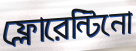
ফ্লোরেন্টিনো